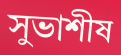
সুভাশীষ